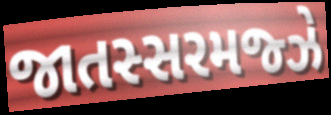
જાતસ્સરમજ્ઝે